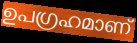
ഉപഗ്രഹമാണ്